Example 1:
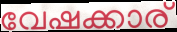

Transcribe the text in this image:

വേഷക്കാര്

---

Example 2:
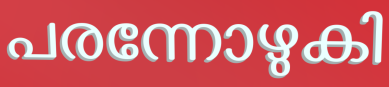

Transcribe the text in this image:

പരന്നോഴുകി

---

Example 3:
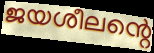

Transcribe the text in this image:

ജയശീലന്റെ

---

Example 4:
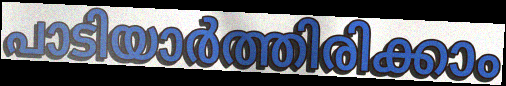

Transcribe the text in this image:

പാടിയാർത്തിരിക്കാം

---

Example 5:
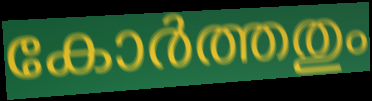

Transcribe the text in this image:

കോർത്തതും